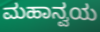
ಮಹಾನ್ವಯ